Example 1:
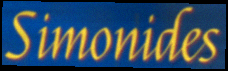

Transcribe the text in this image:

Simonides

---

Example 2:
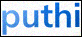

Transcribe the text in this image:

puthi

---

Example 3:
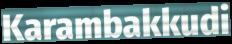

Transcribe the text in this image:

Karambakkudi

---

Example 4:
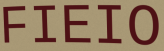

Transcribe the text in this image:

FIEIO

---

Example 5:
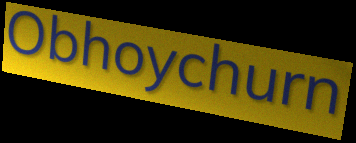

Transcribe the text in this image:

Obhoychurn